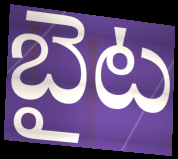
బైట